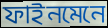
ফাইনমেনে